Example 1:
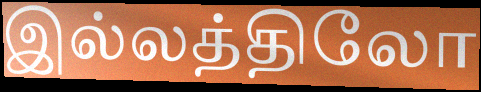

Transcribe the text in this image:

இல்லத்திலோ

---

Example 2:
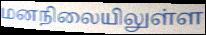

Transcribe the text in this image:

மனநிலையிலுள்ள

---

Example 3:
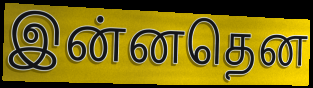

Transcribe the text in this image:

இன்னதென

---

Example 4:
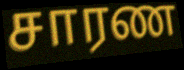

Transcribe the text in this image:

சாரண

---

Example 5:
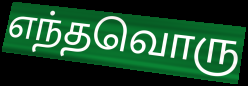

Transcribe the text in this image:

எந்தவொரு